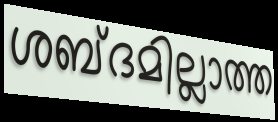
ശബ്ദമില്ലാത്ത